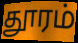
தூரம்